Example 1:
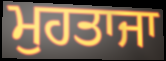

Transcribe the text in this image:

ਮੁਹਤਾਜਾ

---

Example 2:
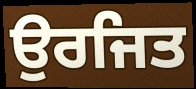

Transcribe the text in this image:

ਉਰਜਿਤ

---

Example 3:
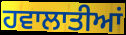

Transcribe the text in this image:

ਹਵਾਲਾਤੀਆਂ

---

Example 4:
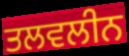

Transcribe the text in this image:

ਤਲਵਲੀਨ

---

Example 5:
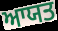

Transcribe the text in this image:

ਆਯਤ